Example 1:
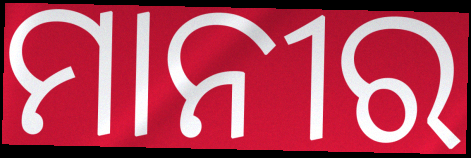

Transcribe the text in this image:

ମାନୀର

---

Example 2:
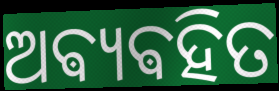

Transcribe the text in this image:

ଅଵ୍ୟଵହିତ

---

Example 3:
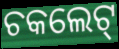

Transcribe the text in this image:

ଚକଲେଟ୍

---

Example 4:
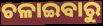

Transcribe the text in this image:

ଚଳାଇବାରୁ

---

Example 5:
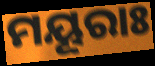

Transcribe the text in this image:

ମୟୂରାଃ